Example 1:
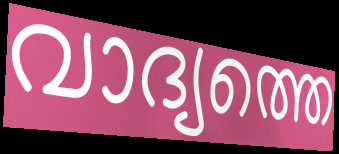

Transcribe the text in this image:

വാദ്യത്തെ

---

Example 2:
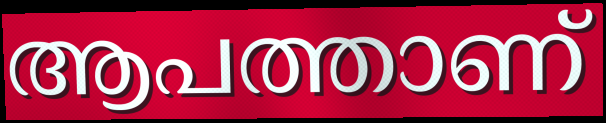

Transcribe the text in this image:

ആപത്താണ്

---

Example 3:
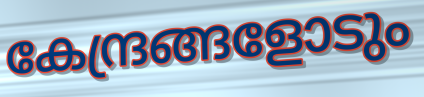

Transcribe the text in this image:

കേന്ദ്രങ്ങളോടും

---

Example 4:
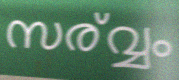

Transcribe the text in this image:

സര്വ്വം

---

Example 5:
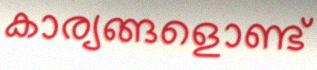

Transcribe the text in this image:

കാര്യങ്ങളൊണ്ട്